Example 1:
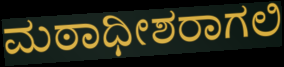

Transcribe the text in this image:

ಮಠಾಧೀಶರಾಗಲಿ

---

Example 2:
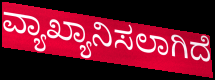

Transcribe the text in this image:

ವ್ಯಾಖ್ಯಾನಿಸಲಾಗಿದೆ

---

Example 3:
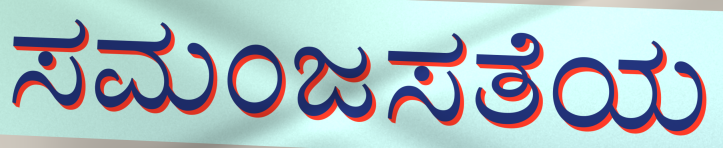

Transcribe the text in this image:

ಸಮಂಜಸತೆಯ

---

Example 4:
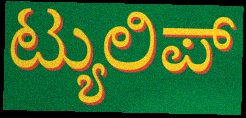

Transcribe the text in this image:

ಟ್ಯುಲಿಪ್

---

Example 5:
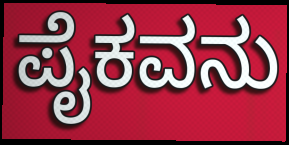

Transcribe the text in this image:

ಪೈಕವನು